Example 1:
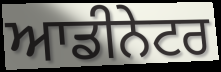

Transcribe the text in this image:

ਆਡੀਨੇਟਰ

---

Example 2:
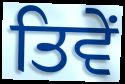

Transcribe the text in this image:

ਤਿਵੇਂ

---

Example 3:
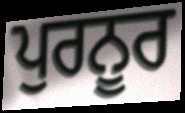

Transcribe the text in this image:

ਪੁਰਨੂਰ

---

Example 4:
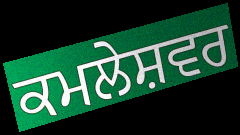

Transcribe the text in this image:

ਕਮਲੇਸ਼ਵਰ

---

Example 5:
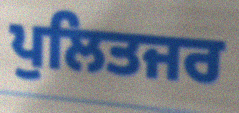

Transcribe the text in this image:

ਪੁਲਿਤਜਰ